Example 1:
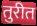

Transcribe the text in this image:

तुरीत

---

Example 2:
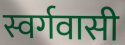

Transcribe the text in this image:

स्वर्गवासी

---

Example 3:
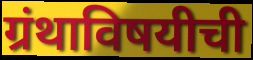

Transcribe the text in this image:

ग्रंथाविषयीची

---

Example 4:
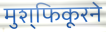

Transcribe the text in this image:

मुश्फिकूरने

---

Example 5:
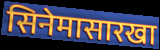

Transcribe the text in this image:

सिनेमासारखा